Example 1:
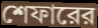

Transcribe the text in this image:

শেফারের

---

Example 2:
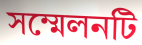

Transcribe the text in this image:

সম্মেলনটি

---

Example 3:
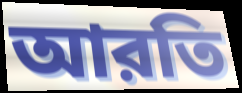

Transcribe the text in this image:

আরতি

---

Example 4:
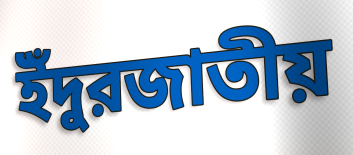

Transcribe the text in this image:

ইঁদুরজাতীয়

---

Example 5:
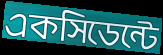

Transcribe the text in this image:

একসিডেন্টে